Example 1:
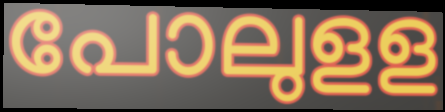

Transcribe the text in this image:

പോലുളള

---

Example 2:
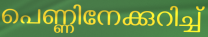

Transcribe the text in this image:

പെണ്ണിനേക്കുറിച്ച്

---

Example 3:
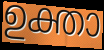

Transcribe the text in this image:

ഉക്താ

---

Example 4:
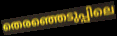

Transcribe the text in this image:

തെരഞ്ഞെടുപ്പിലെ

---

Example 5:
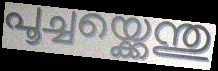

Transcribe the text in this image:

പൂച്ചയ്ക്കെന്തു